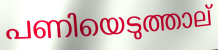
പണിയെടുത്താല്